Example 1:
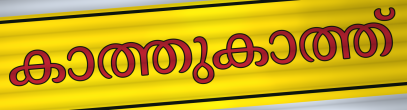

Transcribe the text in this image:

കാത്തുകാത്ത്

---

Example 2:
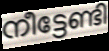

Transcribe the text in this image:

നീട്ടേണ്ടി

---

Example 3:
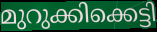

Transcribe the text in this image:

മുറുക്കിക്കെട്ടി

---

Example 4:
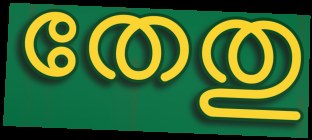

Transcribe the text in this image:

തേതു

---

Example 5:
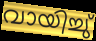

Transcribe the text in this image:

വായിച്ചു്